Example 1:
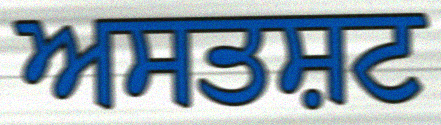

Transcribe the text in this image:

ਅਸਤਸ਼ਟ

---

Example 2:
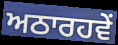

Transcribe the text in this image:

ਅਠਾਰਹਵੇਂ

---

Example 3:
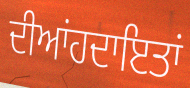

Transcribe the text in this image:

ਦੀਆਂਹਦਾਇਤਾਂ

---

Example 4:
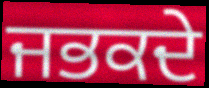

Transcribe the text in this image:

ਜਭਕਦੇ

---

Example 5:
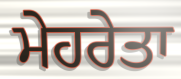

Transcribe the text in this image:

ਮੇਹਰੇਤਾ